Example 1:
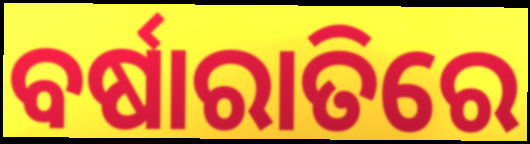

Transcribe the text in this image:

ବର୍ଷାରାତିରେ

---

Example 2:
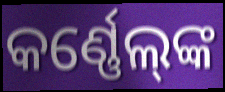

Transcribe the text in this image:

କର୍ଣ୍ଣେଲ୍‌ଙ୍କ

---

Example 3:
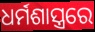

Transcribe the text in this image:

ଧର୍ମଶାସ୍ତ୍ରରେ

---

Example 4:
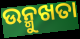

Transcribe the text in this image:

ଉନ୍ମୁଖତା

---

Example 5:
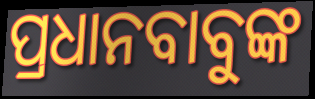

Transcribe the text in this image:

ପ୍ରଧାନବାବୁଙ୍କ